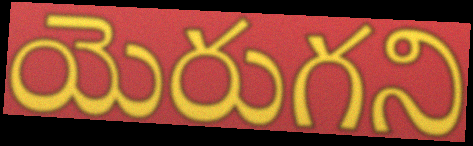
యెరుగని